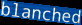
blanched